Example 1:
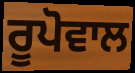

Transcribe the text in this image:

ਰੂਪੋਵਾਲ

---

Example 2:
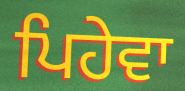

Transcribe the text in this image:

ਪਿਹੇਵਾ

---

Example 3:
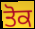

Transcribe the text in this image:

ਤੋਕ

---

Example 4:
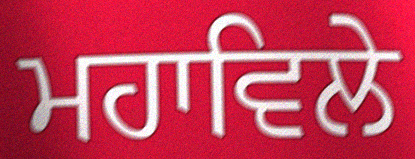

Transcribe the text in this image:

ਮਹਾਵਿਲੇ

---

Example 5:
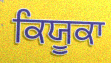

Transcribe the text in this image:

ਕਿਯੂਕਾ